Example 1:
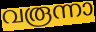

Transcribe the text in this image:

വരൂന്നാ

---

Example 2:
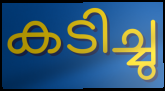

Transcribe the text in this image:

കടിച്ചു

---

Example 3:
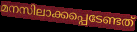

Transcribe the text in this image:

മനസിലാക്കപ്പെടേണ്ടത്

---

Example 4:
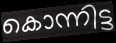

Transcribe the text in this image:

കൊന്നിട്ട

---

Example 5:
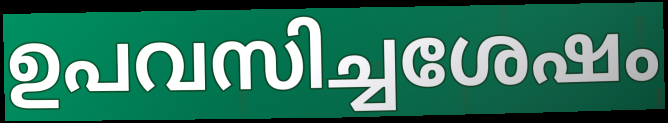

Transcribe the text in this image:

ഉപവസിച്ചശേഷം